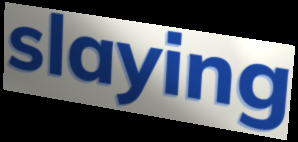
slaying